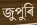
জুপুৰি